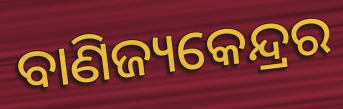
ବାଣିଜ୍ୟକେନ୍ଦ୍ରର